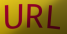
URL